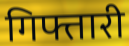
गिफ्तारी